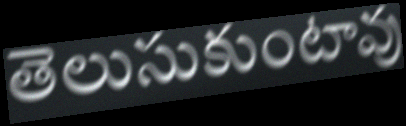
తెలుసుకుంటావు